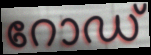
റോഡ്